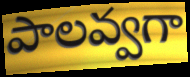
పాలవ్వగా